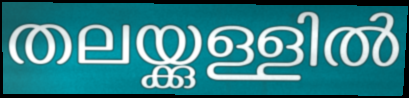
തലയ്ക്കുള്ളിൽ